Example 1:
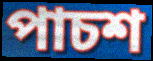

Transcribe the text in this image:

পাচশ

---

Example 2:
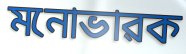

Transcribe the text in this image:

মনোভাৱক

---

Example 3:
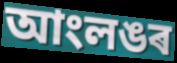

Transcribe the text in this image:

আংলঙৰ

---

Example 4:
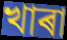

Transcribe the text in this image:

খাৰা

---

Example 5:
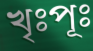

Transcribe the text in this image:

খৃঃপূঃ